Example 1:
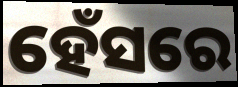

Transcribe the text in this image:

ହେଁସରେ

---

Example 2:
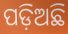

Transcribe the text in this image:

ପଡ଼ିଅଛି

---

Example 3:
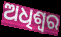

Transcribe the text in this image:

ଅଧିଶ୍ବର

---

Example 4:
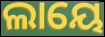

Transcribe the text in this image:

ଲାୟେ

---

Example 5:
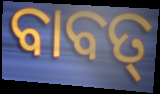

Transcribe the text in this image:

ବାବତ୍